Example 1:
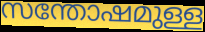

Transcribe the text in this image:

സന്തോഷമുള്ള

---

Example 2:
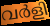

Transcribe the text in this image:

വർളി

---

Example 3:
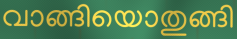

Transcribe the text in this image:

വാങ്ങിയൊതുങ്ങി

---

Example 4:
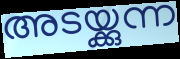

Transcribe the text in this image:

അടയ്ക്കുന്ന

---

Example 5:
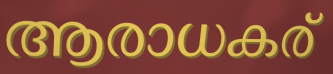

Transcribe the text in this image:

ആരാധകര്